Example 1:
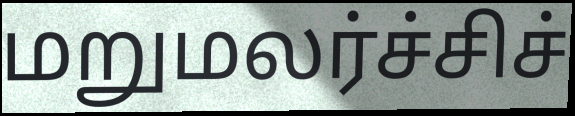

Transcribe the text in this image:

மறுமலர்ச்சிச்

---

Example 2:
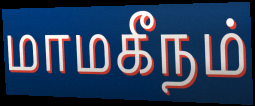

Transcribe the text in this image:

மாமகீநம்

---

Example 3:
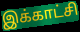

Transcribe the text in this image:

இக்காட்சி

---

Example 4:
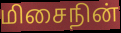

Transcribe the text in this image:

மிசைநின்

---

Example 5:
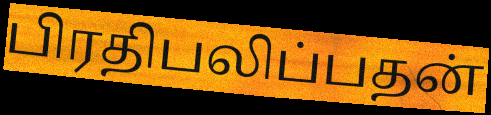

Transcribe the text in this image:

பிரதிபலிப்பதன்